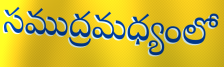
సముద్రమధ్యంలో